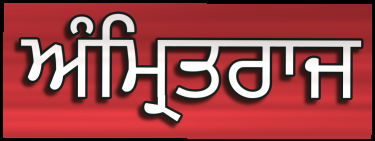
ਅੰਮ੍ਰਿਤਰਾਜ